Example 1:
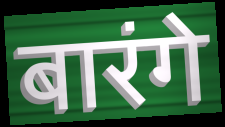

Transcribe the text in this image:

बारंगे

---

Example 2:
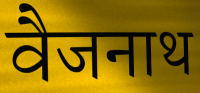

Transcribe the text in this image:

वैजनाथ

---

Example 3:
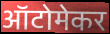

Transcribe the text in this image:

ऑटोमेकर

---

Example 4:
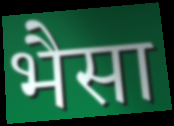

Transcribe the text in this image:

भैसा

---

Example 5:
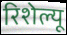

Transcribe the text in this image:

रिशेल्यू